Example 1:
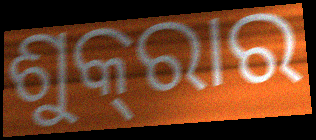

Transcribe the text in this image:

ଶୁକ୍‌ରାର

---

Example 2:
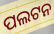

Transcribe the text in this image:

ପଲଟନ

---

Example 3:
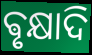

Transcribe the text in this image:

ଵୃକ୍ଷାଦି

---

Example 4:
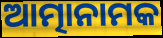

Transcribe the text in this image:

ଆତ୍ମାନାମକ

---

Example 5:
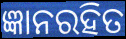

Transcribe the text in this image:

ଜ୍ଞାନରହିତ